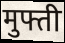
मुफ्ती